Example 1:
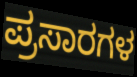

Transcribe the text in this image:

ಪ್ರಸಾರಗಳ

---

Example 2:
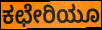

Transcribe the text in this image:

ಕಛೇರಿಯೂ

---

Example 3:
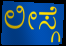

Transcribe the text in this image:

ಲೀಸ್ಗೆ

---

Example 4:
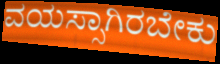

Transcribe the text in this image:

ವಯಸ್ಸಾಗಿರಬೇಕು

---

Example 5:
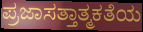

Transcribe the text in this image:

ಪ್ರಜಾಸತ್ತಾತ್ಮಕತೆಯ